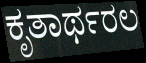
ಕೃತಾರ್ಥರಲ